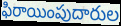
ఫిరాయింపుదారుల